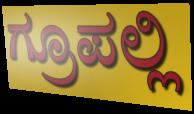
ಗ್ರೂಪಲ್ಲಿ